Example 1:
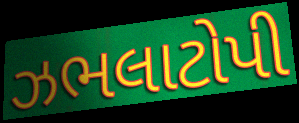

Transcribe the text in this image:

ઝભલાટોપી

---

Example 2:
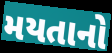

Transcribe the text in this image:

મયતાનો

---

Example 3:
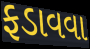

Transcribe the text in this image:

ફડાવવા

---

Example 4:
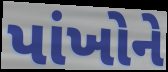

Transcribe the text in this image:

પાંખોને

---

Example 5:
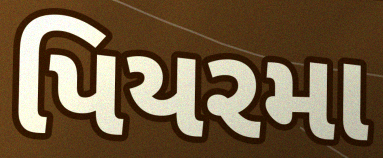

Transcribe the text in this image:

પિયરમા